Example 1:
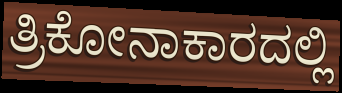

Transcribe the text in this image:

ತ್ರಿಕೋನಾಕಾರದಲ್ಲಿ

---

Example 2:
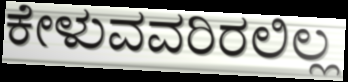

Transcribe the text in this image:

ಕೇಳುವವರಿರಲಿಲ್ಲ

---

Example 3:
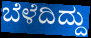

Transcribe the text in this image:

ಬೆಳೆದಿದ್ದು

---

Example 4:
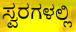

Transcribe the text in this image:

ಸ್ವರಗಳಲ್ಲಿ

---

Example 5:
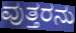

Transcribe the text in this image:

ವುತ್ತರನು